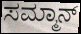
ಸಮ್ಮಾನ್